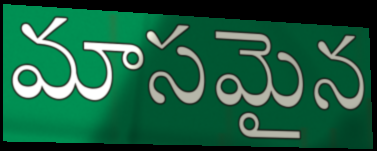
మాసమైన